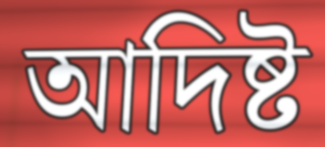
আদিষ্ট